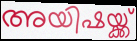
അയിഷയ്ക്ക്